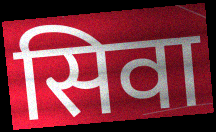
सिवा